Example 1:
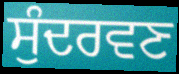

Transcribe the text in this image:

ਸੁੰਦਰਵਣ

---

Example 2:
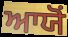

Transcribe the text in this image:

ਆਯੋਂ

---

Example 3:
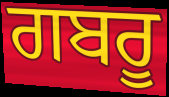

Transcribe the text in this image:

ਗਬਰੂ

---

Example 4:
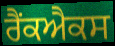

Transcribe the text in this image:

ਰੈਂਕਐਕਸ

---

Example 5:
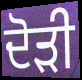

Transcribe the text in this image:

ਦੋੜੀ